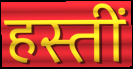
हस्तीं